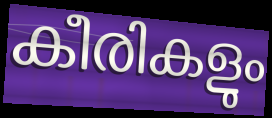
കീരികളും